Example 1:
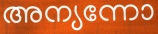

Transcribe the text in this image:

അന്യന്നോ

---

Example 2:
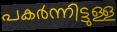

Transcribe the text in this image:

പകർന്നിട്ടുള്ള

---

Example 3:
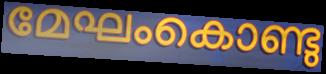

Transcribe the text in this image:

മേഘംകൊണ്ടു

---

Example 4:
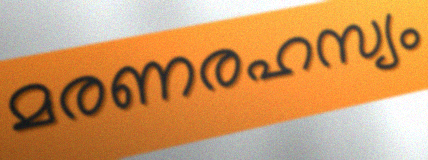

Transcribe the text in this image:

മരണരഹസ്യം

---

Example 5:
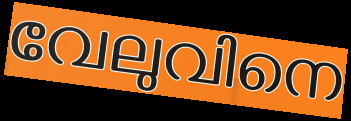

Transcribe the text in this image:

വേലുവിനെ